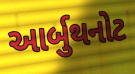
આર્બુથનોટ